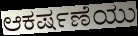
ಆಕರ್ಷಣೆಯು